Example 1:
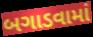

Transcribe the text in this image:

બગાડવામાં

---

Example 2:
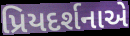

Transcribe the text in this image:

પ્રિયદર્શનાએ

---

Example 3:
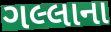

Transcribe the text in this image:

ગલ્લાના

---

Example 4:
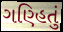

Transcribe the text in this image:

ગણ્હિતું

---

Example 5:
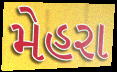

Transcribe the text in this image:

મેહરા